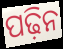
ପଢ଼ିନ